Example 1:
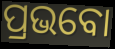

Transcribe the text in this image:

ପ୍ରଭବୋ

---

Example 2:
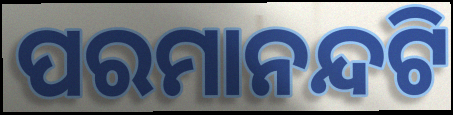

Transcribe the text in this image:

ପରମାନନ୍ଦଟି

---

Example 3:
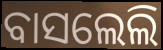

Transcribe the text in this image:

ବାସଲେଲି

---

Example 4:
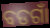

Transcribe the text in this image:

ବଡଗାଁ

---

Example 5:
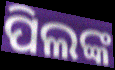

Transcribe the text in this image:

ପିଲଙ୍କ